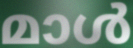
മാൾ